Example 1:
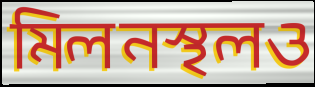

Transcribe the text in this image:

মিলনস্থলও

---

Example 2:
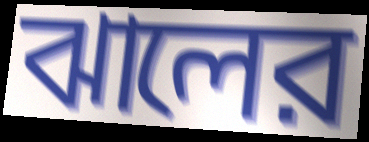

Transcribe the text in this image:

ঝালের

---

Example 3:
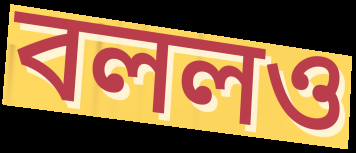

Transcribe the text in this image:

বললও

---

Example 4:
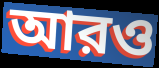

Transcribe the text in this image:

আরও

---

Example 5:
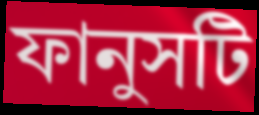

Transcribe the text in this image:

ফানুসটি